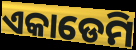
ଏକାଡେମି